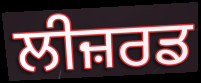
ਲੀਜ਼ਰਡ